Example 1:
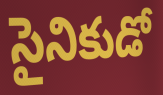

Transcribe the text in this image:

సైనికుడో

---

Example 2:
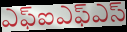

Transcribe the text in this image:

ఎఫ్ఐఎఫ్ఎస్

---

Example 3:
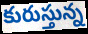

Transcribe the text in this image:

కురుస్తున్న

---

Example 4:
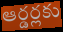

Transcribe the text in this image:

ఆర్డర్లకు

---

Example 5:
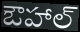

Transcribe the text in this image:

ఔహాల్